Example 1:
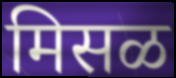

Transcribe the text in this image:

मिसळ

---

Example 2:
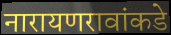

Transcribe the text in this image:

नारायणरावांकडे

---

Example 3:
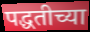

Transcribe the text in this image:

पद्धतीच्या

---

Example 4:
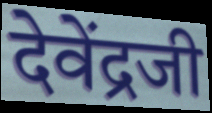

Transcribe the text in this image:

देवेंद्रजी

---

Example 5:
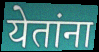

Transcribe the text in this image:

येतांना